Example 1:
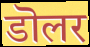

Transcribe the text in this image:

डॊलर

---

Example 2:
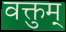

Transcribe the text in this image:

वक्तुम्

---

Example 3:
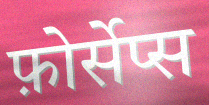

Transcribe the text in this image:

फ़ोर्सेप्स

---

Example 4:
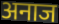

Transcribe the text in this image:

अनाज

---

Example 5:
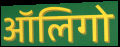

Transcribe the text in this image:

ऑलिगो